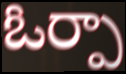
ఓర్పా